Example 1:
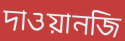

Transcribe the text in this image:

দাওয়ানজি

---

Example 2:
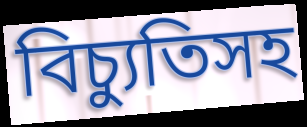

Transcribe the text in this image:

বিচ্যুতিসহ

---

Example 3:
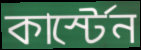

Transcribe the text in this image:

কার্স্টেন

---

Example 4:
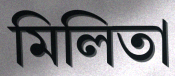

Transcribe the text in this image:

মিলিতা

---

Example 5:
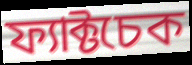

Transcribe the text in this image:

ফ্যাক্টচেক